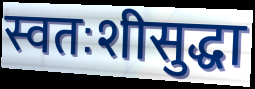
स्वतःशीसुद्धा